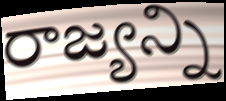
రాజ్యన్ని